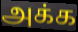
அக்க